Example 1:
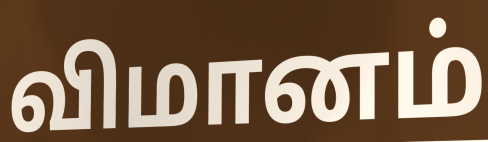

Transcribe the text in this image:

விமானம்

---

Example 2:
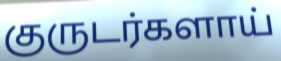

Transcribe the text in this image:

குருடர்களாய்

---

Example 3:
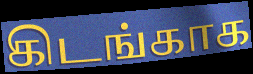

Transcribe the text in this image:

கிடங்காக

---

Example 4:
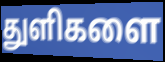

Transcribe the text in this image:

துளிகளை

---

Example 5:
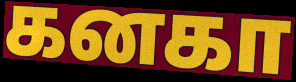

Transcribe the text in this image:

கனகா